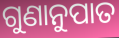
ଗୁଣାନୁପାତ